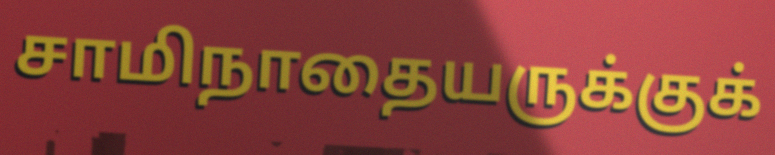
சாமிநாதையருக்குக்